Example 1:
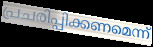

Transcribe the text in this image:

പ്രചരിപ്പിക്കണമെന്ന്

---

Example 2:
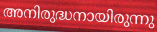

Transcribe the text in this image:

അനിരുദ്ധനായിരുന്നു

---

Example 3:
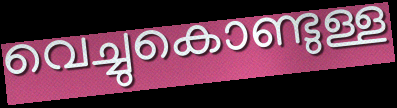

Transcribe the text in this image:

വെച്ചുകൊണ്ടുള്ള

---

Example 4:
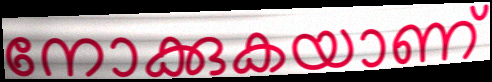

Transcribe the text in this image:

നോക്കുകയാണ്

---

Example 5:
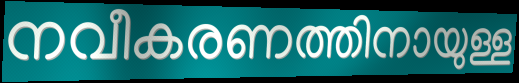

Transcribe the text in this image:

നവീകരണത്തിനായുള്ള